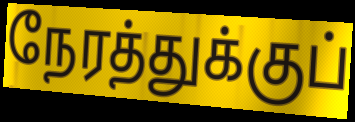
நேரத்துக்குப்